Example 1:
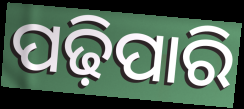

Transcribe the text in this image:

ପଢ଼ିପାରି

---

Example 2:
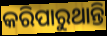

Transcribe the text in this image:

କରିପାରୁଥାନ୍ତି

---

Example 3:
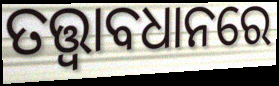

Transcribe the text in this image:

ତତ୍ତ୍ୱାବଧାନରେ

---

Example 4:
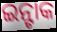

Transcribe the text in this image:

ଇନ୍ଟାକ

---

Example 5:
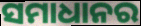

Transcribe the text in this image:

ସମାଧାନର